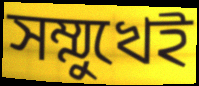
সম্মুখেই